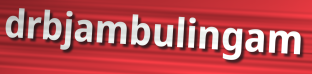
drbjambulingam